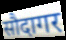
सौदागर